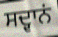
ਸਦ੍ਦਾਨਂ